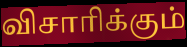
விசாரிக்கும்